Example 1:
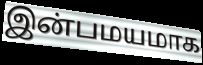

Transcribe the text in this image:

இன்பமயமாக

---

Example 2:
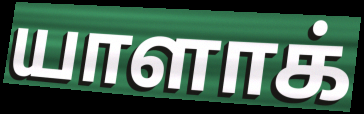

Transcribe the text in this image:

யாளாக்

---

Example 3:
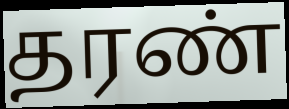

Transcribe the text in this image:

தரண்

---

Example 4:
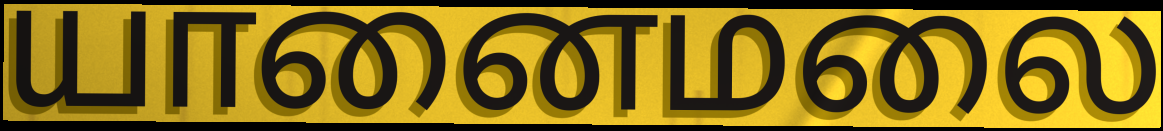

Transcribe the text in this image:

யானைமலை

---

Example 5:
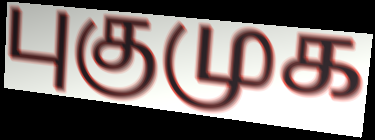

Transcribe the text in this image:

புகுமுக